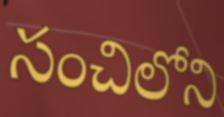
సంచిలోని